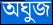
অঘুজ